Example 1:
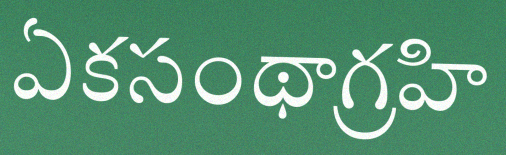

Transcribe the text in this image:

ఏకసంథాగ్రహి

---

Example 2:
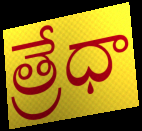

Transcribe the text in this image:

త్రేధా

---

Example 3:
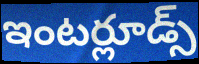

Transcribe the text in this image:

ఇంటర్లూడ్స్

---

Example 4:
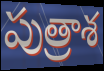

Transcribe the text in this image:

పుత్రాశ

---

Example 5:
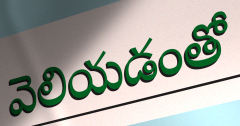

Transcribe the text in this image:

వెలియడంతో